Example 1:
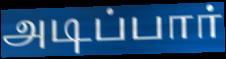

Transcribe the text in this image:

அடிப்பார்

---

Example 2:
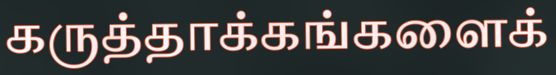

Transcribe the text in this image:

கருத்தாக்கங்களைக்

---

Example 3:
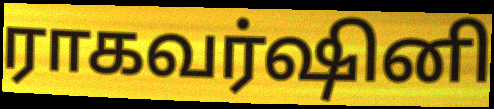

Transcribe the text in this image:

ராகவர்ஷினி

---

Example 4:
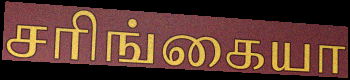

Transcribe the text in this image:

சரிங்கையா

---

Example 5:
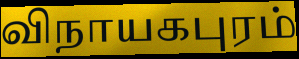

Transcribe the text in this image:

விநாயகபுரம்